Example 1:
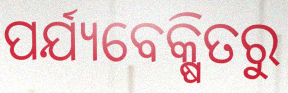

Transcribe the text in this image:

ପର୍ଯ୍ୟବେକ୍ଷିତରୁ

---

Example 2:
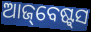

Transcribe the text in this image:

ଆଜ୍‌ବେଷ୍ଟ୍‌ସ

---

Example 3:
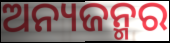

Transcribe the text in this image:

ଅନ୍ୟଜନ୍ମର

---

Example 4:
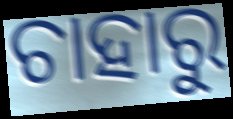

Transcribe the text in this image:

ଚାହାରୁ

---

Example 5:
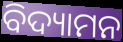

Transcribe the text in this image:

ବିଦ୍ୟାମନ